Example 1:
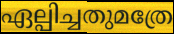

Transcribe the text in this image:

ഏല്പിച്ചതുമത്രേ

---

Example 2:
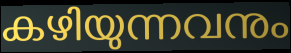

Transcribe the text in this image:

കഴിയുന്നവനും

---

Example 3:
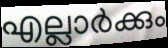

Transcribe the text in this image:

എല്ലാർക്കും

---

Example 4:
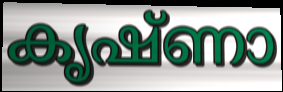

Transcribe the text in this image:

കൃഷ്ണാ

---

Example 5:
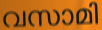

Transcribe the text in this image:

വസാമി